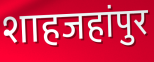
शाहजहांपुर